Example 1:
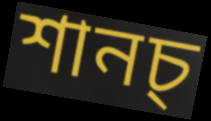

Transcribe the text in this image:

শানচ্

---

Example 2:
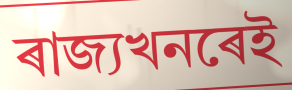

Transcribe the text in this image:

ৰাজ্যখনৰেই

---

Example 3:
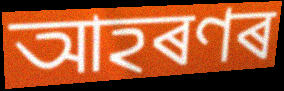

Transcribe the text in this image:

আহৰণৰ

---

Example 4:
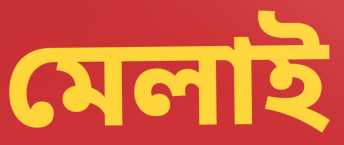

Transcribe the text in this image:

মেলাই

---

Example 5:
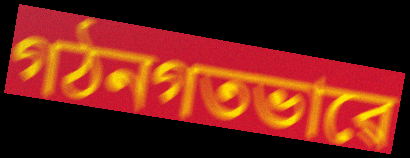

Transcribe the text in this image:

গঠনগতভাৱে